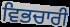
ਵਿਭਚਾਰੀ